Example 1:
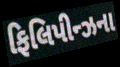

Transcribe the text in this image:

ફિલિપીન્ઝના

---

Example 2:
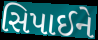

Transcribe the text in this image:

સિપાઈને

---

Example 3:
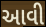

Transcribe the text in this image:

આવી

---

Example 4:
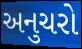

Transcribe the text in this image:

અનુચરો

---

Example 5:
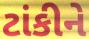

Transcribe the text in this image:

ટાંકીને